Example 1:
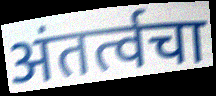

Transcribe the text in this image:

अंतर्त्वचा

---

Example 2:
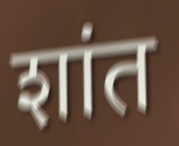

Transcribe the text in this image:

शांत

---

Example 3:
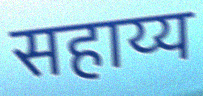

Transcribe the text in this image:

सहाय्य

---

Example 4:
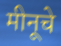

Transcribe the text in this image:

मीनूचे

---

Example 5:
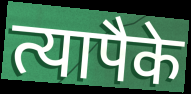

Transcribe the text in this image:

त्यापैके